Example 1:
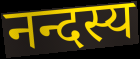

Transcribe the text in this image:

नन्दस्य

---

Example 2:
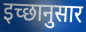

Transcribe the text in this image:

इच्‍छानुसार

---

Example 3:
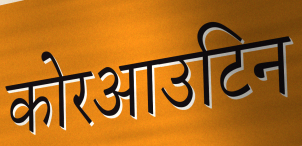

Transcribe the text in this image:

कोरआउटिन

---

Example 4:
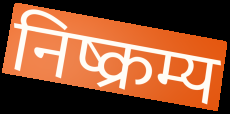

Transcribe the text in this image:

निष्क्रम्य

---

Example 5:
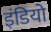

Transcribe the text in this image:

इंडियो